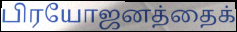
பிரயோஜனத்தைக்